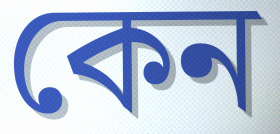
কেন